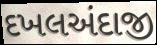
દખલઅંદાજી